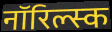
नॉरिल्स्क